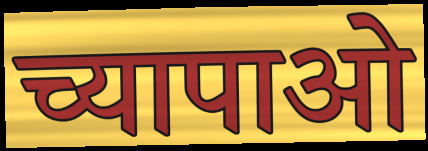
च्यापाओ